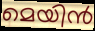
മെയിൻ